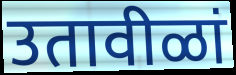
उतावीळां